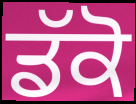
ਡੱਕੋ